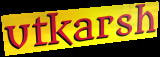
utkarsh